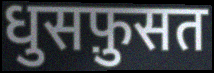
धुसफ़ुसत